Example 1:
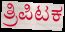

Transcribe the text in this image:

ತ್ರಿಪಿಟಕ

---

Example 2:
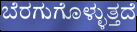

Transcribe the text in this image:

ಬೆರಗುಗೊಳ್ಳುತ್ತದೆ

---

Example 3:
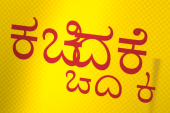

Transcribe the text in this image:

ಕಚ್ಚಿದ್ದಕ್ಕೆ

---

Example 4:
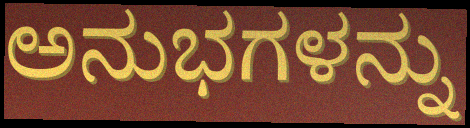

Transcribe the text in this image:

ಅನುಭಗಳನ್ನು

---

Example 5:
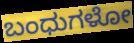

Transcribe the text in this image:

ಬಂಧುಗಳೋ